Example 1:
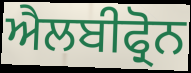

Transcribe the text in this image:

ਐਲਬੀਫ੍ਰੋਨ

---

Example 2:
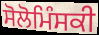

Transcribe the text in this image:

ਸੋਲੋਮਿੰਸਕੀ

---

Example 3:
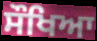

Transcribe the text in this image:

ਸੌਖਿਆ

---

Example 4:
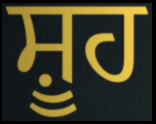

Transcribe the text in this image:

ਸ਼ੂਹ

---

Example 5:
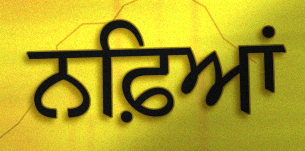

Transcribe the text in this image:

ਨਫ਼ਿਆਂ